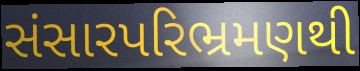
સંસારપરિભ્રમણથી